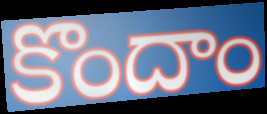
కొందాం